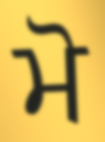
ਮੋ